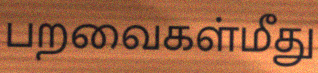
பறவைகள்மீது